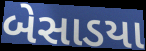
બેસાડયા